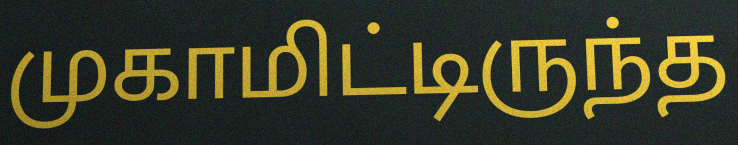
முகாமிட்டிருந்த